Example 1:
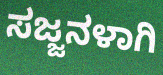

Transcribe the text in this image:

ಸಜ್ಜನಳಾಗಿ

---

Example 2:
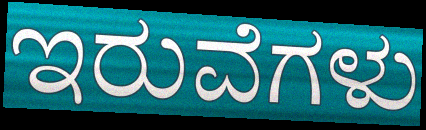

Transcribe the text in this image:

ಇರುವೆಗಳು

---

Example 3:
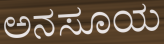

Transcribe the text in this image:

ಅನಸೂಯ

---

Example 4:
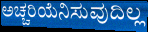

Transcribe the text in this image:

ಅಚ್ಚರಿಯೆನಿಸುವುದಿಲ್ಲ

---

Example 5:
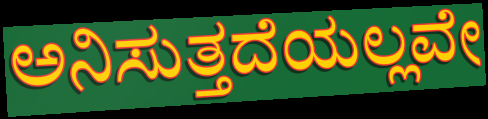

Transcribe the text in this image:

ಅನಿಸುತ್ತದೆಯಲ್ಲವೇ